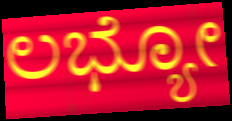
ಲಭ್ಯೋ